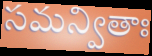
సమన్వితాః